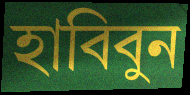
হাবিবুন